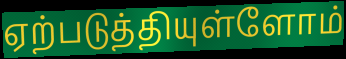
ஏற்படுத்தியுள்ளோம்